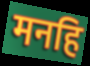
मनहि